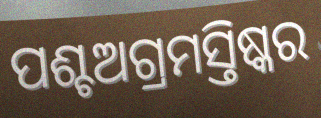
ପଶ୍ଚଅଗ୍ରମସ୍ତିଷ୍କର